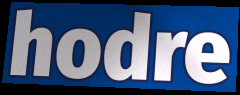
hodre